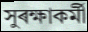
সুৰক্ষাকৰ্মী